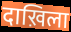
दाख़िला